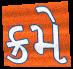
ક્રમે